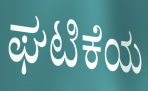
ಘಟಿಕೆಯ